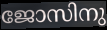
ജോസിനു